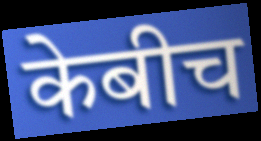
केबीच